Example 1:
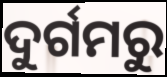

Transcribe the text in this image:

ଦୁର୍ଗମରୁ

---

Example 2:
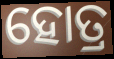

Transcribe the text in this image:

ହୋତ୍ର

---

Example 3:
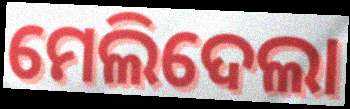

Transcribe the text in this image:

ମେଲିଦେଲା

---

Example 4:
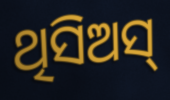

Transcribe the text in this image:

ଥିସିଅସ୍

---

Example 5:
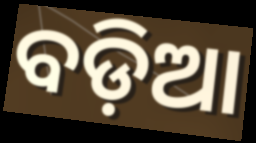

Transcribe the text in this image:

ବଡ଼ିଆ